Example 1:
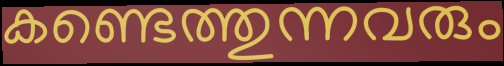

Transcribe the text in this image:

കണ്ടെത്തുന്നവരും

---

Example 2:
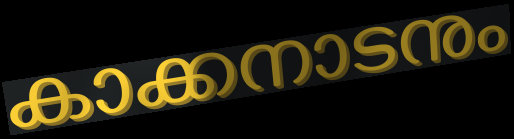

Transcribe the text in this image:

കാക്കനാടനും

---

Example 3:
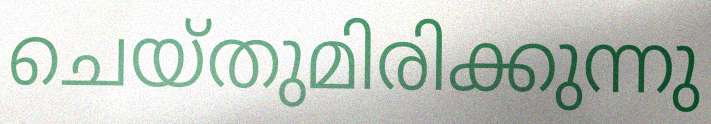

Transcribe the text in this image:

ചെയ്തുമിരിക്കുന്നു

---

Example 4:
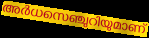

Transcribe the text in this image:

അർധസെഞ്ചുറിയുമാണ്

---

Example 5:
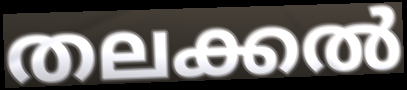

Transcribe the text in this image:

തലക്കൽ